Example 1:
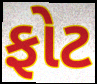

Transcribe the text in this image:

ફોટ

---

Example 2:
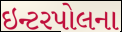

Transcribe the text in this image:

ઇન્ટરપોલના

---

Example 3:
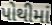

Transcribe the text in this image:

પોથીમાં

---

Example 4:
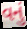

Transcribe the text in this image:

વનું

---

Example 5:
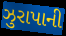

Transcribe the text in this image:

ઝુરાપાની